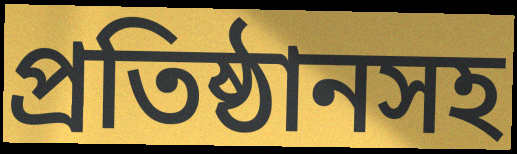
প্রতিষ্ঠানসহ